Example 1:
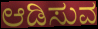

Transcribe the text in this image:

ಆಡಿಸುವ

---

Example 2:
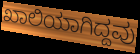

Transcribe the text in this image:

ಖಾಲಿಯಾಗಿದ್ದವು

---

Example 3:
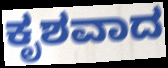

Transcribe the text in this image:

ಕೃಶವಾದ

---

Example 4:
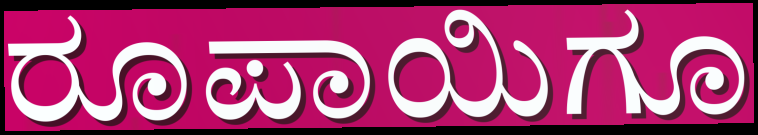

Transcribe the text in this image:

ರೂಪಾಯಿಗೂ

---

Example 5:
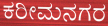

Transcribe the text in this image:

ಕರೀಮನಗರ